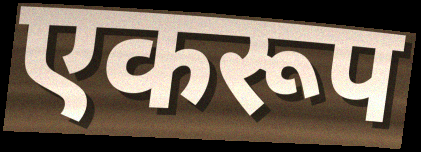
एकरूप